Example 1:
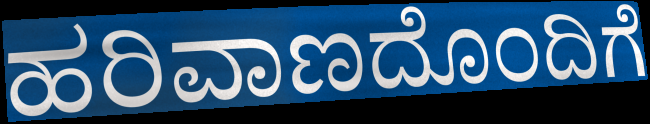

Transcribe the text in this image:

ಹರಿವಾಣದೊಂದಿಗೆ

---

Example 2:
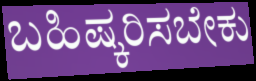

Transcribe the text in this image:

ಬಹಿಷ್ಕರಿಸಬೇಕು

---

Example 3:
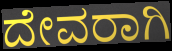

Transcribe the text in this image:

ದೇವರಾಗಿ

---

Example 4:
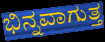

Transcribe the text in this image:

ಭಿನ್ನವಾಗುತ್ತ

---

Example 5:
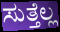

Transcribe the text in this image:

ಸುತ್ತೆಲ್ಲ